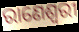
ରାଣେଶ୍ୱରୀ